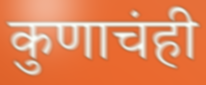
कुणाचंही